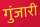
गुंजारी